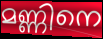
മണ്ണിനെ